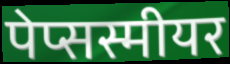
पेप्सस्मीयर